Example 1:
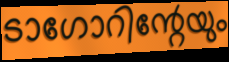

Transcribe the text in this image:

ടാഗോറിന്റേയും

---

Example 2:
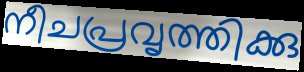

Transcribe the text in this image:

നീചപ്രവൃത്തിക്കു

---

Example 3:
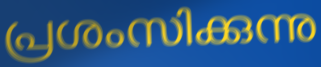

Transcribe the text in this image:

പ്രശംസിക്കുന്നു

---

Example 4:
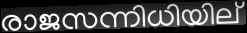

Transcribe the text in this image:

രാജസന്നിധിയില്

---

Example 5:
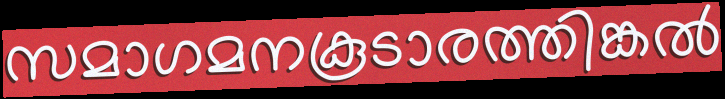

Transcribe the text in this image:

സമാഗമനകൂടാരത്തിങ്കൽ